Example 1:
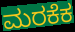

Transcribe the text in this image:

ಮರಕೆಕ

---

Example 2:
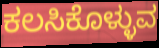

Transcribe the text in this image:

ಕಲಸಿಕೊಳ್ಳುವ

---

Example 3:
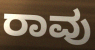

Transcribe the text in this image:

ರಾವು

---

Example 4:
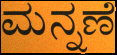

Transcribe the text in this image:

ಮನ್ನಣೆ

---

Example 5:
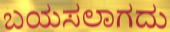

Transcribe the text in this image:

ಬಯಸಲಾಗದು